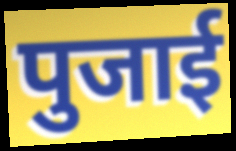
पुजाई